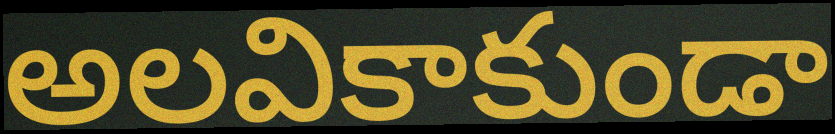
అలవికాకుండా